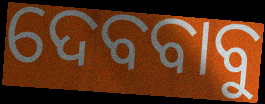
ଦେବବାବୁ